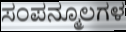
ಸಂಪನ್ಮೂಲಗಳ